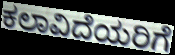
ಕಲಾವಿದೆಯರಿಗೆ